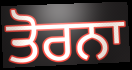
ਤੋਰਨਾ